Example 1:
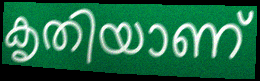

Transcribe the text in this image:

കൃതിയാണ്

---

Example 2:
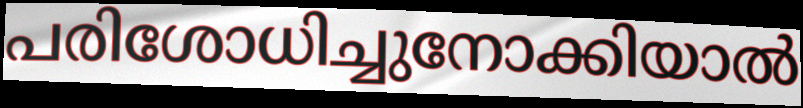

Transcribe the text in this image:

പരിശോധിച്ചുനോക്കിയാൽ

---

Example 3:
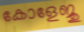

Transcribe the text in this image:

കോളേജു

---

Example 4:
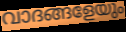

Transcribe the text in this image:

വാദങ്ങളേയും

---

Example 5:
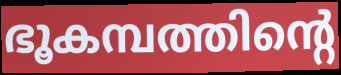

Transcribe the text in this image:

ഭൂകമ്പത്തിന്റെ